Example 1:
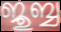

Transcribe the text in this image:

ജുബ്ബ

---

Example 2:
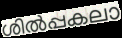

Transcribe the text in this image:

ശിൽപ്പകലാ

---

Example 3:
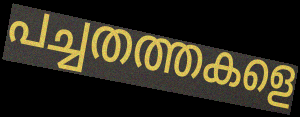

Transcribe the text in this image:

പച്ചതത്തകളെ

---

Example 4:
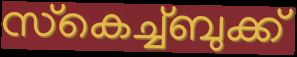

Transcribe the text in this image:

സ്‌കെച്ച്ബുക്ക്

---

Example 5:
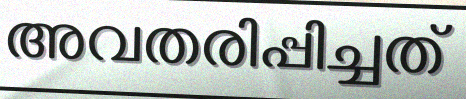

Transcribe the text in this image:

അവതരിപ്പിച്ചത്